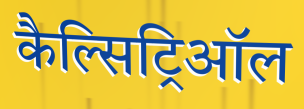
कैल्सिट्रिऑल